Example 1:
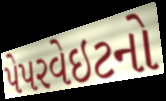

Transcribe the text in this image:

પેપરવેઇટનો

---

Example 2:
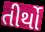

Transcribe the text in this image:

તીર્થો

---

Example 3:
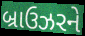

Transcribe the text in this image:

બ્રાઉઝરને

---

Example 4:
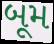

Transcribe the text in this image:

બૂમ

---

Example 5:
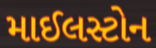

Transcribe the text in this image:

માઈલસ્ટોન